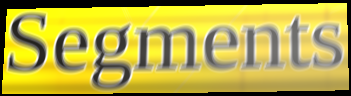
Segments